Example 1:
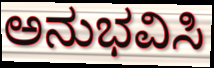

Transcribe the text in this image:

ಅನುಭವಿಸಿ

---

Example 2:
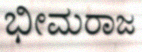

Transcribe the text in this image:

ಭೀಮರಾಜ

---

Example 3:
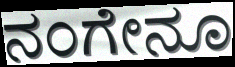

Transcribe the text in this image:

ನಂಗೇನೂ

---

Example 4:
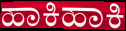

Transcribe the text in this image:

ಹಾಕಿಹಾಕಿ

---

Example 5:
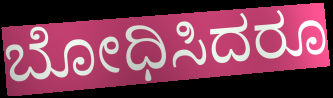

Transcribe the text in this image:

ಬೋಧಿಸಿದರೂ